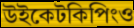
উইকেটকিপিংও